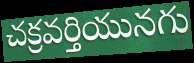
చక్రవర్తియునగు